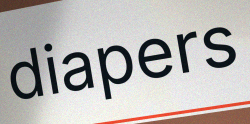
diapers